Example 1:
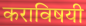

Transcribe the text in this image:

कराविषयी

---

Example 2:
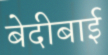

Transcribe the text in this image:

बेदीबाई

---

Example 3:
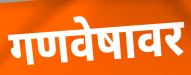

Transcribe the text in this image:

गणवेषावर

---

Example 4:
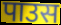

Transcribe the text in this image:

पाउस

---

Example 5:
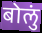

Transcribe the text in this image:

बोलुं